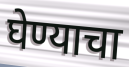
घेण्याचा